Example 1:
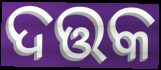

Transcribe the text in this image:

ଦତ୍ତକ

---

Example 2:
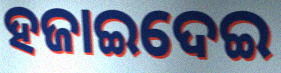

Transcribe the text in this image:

ହଜାଇଦେଇ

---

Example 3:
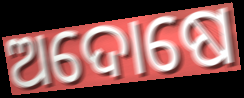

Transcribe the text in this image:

ଅଦୋଷେ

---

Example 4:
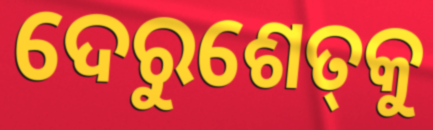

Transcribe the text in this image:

ଦେରୁଶେତ୍‌କୁ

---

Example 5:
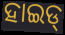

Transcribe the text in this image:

ହାଇଡ୍